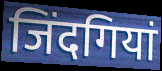
जिंदगियां